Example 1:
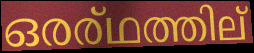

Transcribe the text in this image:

ഒരര്ഥത്തില്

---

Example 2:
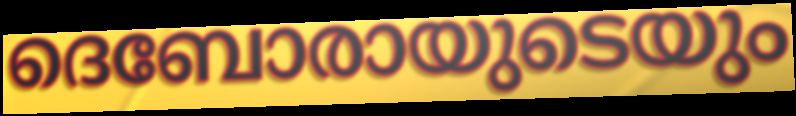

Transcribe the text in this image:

ദെബോരായുടെയും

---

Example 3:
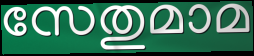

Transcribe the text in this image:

സേതുമാമ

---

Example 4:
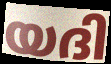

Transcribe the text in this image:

യദി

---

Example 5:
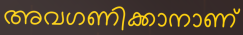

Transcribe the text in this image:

അവഗണിക്കാനാണ്